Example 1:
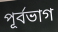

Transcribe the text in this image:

পূর্বভাগ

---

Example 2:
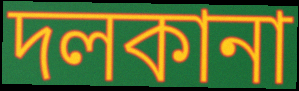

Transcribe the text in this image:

দলকানা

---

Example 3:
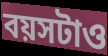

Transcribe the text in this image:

বয়সটাও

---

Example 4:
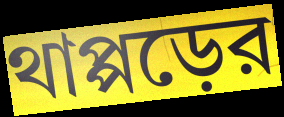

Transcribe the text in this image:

থাপ্পড়ের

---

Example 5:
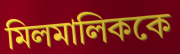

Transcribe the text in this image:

মিলমালিককে